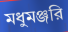
মধুমঞ্জরি